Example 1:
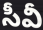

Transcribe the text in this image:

సీవీ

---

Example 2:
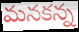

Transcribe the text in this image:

మనకన్న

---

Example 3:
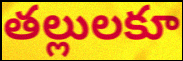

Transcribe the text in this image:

తల్లులకూ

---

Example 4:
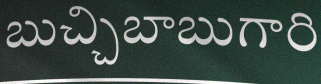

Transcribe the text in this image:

బుచ్చిబాబుగారి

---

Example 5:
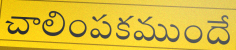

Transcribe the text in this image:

చాలింపకముందే